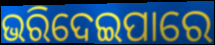
ଭରିଦେଇପାରେ